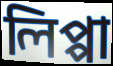
লিপ্পা